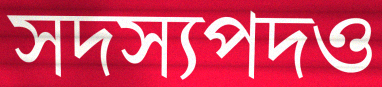
সদস্যপদও